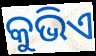
କୁଭିଏ